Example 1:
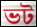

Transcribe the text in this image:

ভট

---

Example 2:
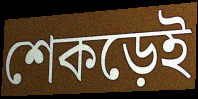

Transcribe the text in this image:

শেকড়েই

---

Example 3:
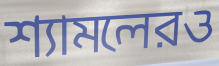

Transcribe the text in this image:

শ্যামলেরও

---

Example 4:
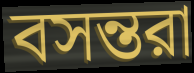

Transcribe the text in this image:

বসন্তরা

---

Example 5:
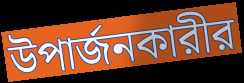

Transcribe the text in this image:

উপার্জনকারীর